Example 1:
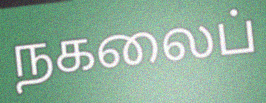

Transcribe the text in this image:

நகலைப்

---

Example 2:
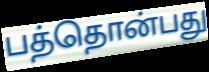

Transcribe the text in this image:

பத்தொன்பது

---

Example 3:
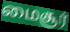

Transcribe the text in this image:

மைசூர்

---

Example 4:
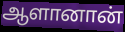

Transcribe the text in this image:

ஆளானான்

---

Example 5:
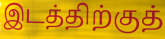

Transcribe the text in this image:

இடத்திற்குத்